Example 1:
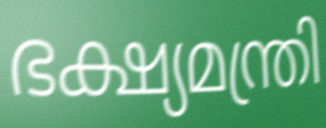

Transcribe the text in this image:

ഭക്ഷ്യമന്ത്രി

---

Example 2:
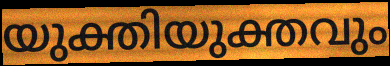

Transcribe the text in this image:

യുക്തിയുക്തവും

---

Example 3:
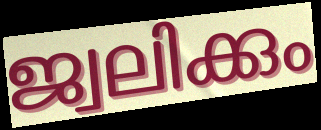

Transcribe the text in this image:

ജ്വലിക്കും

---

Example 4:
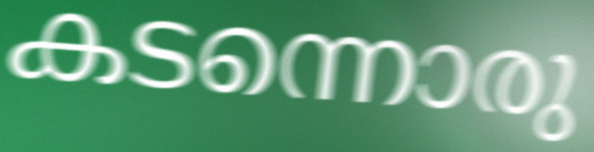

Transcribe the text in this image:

കടന്നൊരു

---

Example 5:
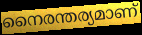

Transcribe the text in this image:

നൈരന്തര്യമാണ്